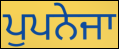
ਪੁਪਨੇਜਾ